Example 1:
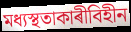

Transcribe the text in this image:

মধ্যস্থতাকাৰীবিহীন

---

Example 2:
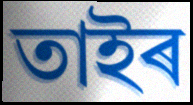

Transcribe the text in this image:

তাইৰ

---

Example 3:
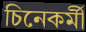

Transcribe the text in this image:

চিনেকৰ্মী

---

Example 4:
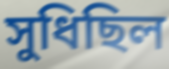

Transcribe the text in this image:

সুধিছিল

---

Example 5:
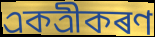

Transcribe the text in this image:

একত্ৰীকৰণ